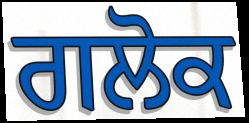
ਗਲੋਕ